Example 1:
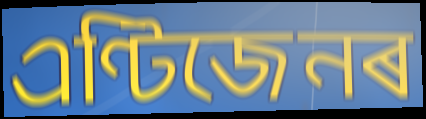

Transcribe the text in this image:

এণ্টিজেনৰ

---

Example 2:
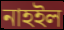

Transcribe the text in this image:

নাহইল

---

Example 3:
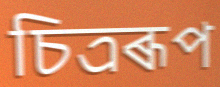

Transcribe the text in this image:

চিত্ৰৰূপ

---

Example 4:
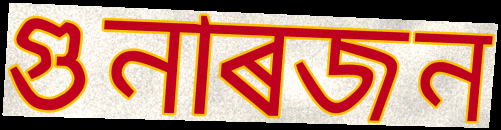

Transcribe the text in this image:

গুনাৰজন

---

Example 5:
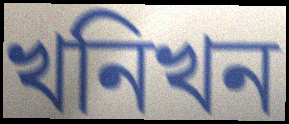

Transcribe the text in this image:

খনিখন